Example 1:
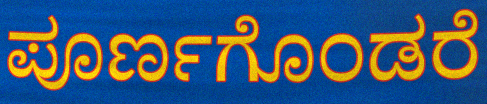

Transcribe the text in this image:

ಪೂರ್ಣಗೊಂಡರೆ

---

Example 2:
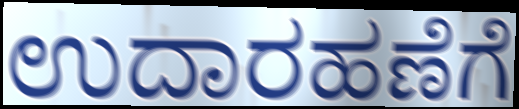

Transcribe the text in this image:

ಉದಾರಹಣೆಗೆ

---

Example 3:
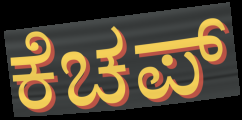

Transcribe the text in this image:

ಕೆಚಪ್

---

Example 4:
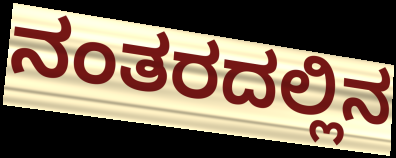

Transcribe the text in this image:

ನಂತರದಲ್ಲಿನ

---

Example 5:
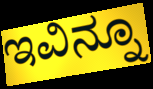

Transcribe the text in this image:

ಇವಿನ್ನೂ